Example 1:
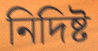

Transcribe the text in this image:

নিদিষ্ট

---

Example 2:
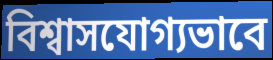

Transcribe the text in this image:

বিশ্বাসযোগ্যভাবে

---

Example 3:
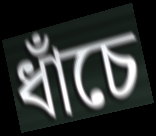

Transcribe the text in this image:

ধাঁচে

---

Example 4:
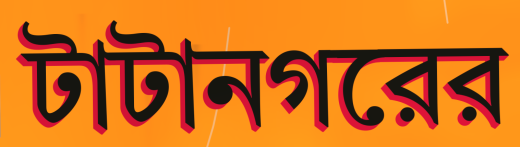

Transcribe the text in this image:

টাটানগরের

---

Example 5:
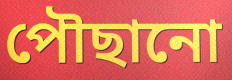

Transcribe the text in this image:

পৌছানো